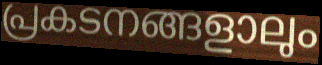
പ്രകടനങ്ങളാലും